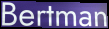
Bertman